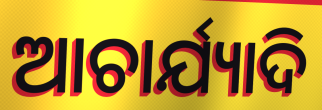
ଆଚାର୍ଯ୍ୟାଦି